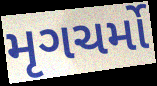
મૃગચર્મો